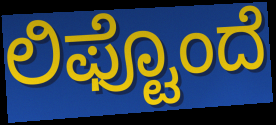
ಲಿಫ್ಟೊಂದೆ